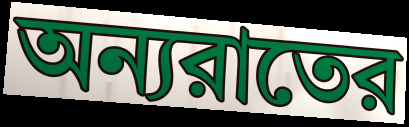
অন্যরাতের